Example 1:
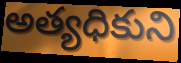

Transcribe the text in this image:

అత్యధికుని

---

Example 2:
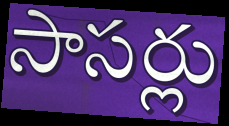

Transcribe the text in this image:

సాసర్లు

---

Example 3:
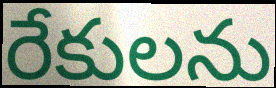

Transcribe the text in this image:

రేకులను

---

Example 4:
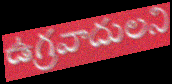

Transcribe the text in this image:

ఉగ్రవాదులని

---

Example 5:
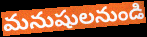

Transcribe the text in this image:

మనుషులనుండి